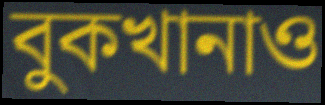
বুকখানাও